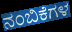
ನಂಬಿಕೆಗಳ